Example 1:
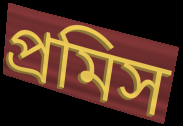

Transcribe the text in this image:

প্রমিস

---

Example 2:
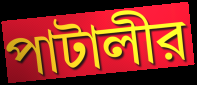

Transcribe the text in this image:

পাটালীর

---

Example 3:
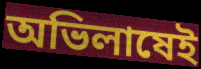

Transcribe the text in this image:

অভিলাষেই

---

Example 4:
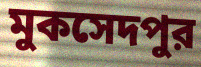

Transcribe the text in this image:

মুকসেদপুর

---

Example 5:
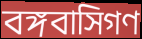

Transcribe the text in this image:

বঙ্গবাসিগণ